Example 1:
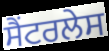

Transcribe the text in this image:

ਸੈਂਟਰਲੇਸ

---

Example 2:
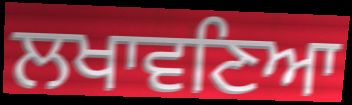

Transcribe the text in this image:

ਲਖਾਵਣਿਆ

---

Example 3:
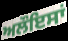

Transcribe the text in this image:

ਅਲੌਇਸਾਂ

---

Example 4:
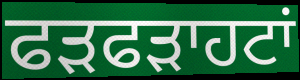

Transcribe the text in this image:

ਫੜਫੜਾਹਟਾਂ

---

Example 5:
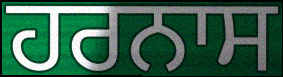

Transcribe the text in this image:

ਹਰਨਾਸ